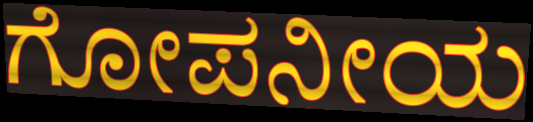
ಗೋಪನೀಯ